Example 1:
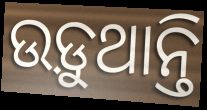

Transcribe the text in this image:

ଉଡ଼ୁଥାନ୍ତି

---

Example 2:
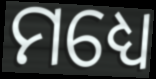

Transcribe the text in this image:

ମଧ୍ୟେ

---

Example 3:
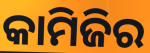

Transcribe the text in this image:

କାମିଜିର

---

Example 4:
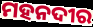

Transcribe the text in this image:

ମହନଦୀର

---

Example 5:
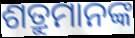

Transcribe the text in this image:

ଶତ୍ରୁମାନଙ୍କ